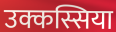
उक्कस्सिया